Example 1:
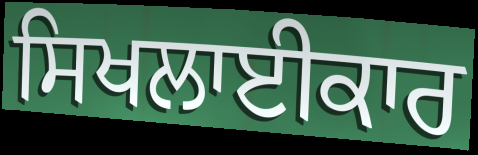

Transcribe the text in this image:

ਸਿਖਲਾਈਕਾਰ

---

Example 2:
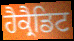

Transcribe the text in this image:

ਹੈਕ੍ਰੈਡਿਟ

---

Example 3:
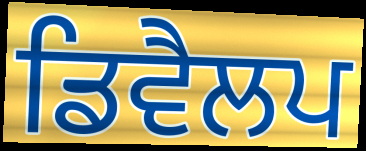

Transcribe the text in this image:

ਡਿਵੈਲਪ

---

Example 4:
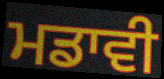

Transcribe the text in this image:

ਮਡਾਵੀ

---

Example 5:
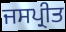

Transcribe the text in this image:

ਜਸਪ੍ਰੀਤ